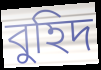
বুহিদ